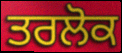
ਤਰਲੋਕ